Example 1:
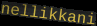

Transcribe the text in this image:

nellikkani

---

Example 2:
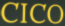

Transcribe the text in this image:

CICO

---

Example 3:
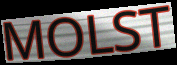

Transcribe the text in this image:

MOLST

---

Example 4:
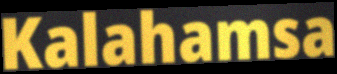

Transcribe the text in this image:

Kalahamsa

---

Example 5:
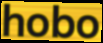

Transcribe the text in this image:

hobo